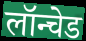
लॉन्चेड